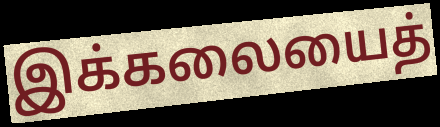
இக்கலையைத்